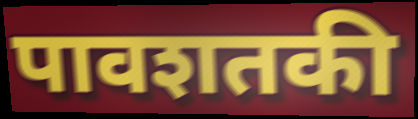
पावशतकी